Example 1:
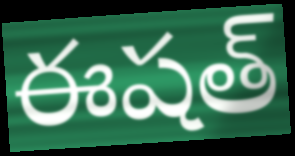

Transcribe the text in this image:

ఈషత్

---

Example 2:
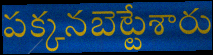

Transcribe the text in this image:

పక్కనబెట్టేశారు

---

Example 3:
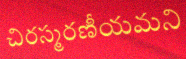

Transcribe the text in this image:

చిరస్మరణీయమని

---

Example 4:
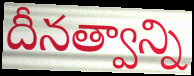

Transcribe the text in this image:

దీనత్వాన్ని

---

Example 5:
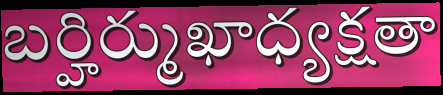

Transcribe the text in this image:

బర్హిర్ముఖాధ్యక్షతా